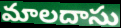
మాలదాసు